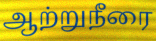
ஆற்றுநீரை